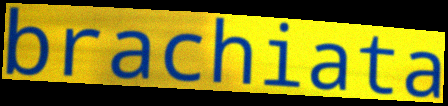
brachiata